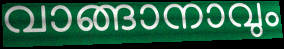
വാങ്ങാനാവും